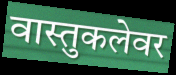
वास्तुकलेवर